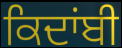
ਕਿਦਾਂਬੀ